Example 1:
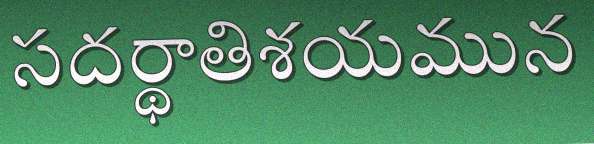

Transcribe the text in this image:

సదర్థాతిశయమున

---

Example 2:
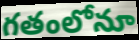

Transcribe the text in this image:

గతంలోనూ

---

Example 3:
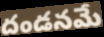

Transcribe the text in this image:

దండనమే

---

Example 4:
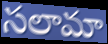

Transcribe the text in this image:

సలామా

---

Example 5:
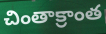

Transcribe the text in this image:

చింతాక్రాంత